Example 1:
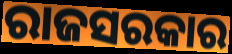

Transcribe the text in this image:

ରାଜସରକାର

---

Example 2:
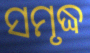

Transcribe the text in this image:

ସମୃଦ୍ଧ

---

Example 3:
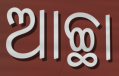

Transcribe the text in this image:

ଆଚ୍ଛା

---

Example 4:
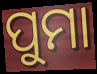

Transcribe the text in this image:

ପୁମା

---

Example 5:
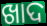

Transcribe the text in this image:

ଖାଦ